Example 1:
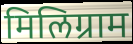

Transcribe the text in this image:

मिलिग्राम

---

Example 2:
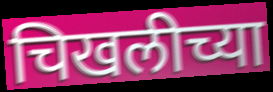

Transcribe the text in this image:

चिखलीच्या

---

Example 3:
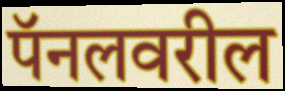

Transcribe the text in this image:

पॅनलवरील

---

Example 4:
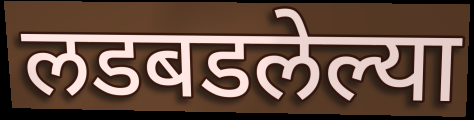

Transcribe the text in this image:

लडबडलेल्या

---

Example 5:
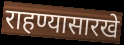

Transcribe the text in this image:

राहण्यासारखे